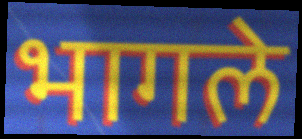
भागले